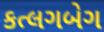
કત્લગબેગ